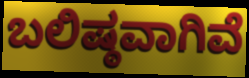
ಬಲಿಷ್ಠವಾಗಿವೆ